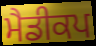
ਮੈਡੀਕਪ